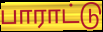
பாராட்டு